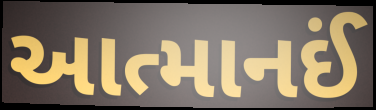
આત્માનઈં